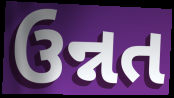
ઉન્નત